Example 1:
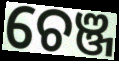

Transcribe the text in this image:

ଚେଞ୍ଜ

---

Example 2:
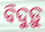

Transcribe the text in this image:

ବିଦୁଡ଼ୁ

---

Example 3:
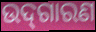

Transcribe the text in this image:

ଉଦ୍‌ଗାରଣ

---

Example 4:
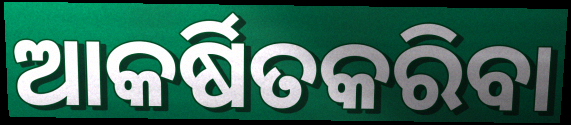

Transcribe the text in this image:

ଆକର୍ଷିତକରିବା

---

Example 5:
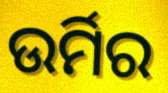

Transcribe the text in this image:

ଉର୍ମିର